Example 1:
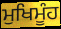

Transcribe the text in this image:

ਮੁਖਿਮੂੰਹ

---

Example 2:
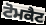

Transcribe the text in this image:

ਟੋਮਕੈਟ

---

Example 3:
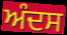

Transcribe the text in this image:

ਅੰਦਸ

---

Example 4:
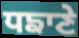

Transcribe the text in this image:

ਧਙਾਣੇ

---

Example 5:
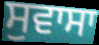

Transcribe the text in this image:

ਸੁਵਾਸਾ